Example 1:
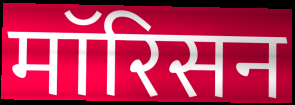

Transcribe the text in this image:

मॉरिसन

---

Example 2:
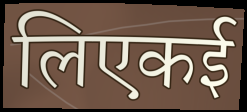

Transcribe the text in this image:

लिएकई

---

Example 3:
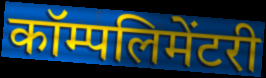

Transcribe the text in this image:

कॉम्पलिमेंटरी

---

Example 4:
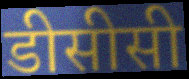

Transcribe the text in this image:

डीसीसी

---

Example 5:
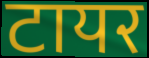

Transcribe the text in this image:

टायर